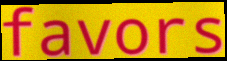
favors